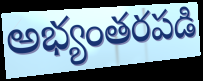
అభ్యంతరపడి